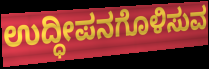
ಉದ್ಧೀಪನಗೊಳಿಸುವ